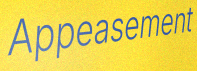
Appeasement